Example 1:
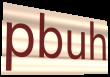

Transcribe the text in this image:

pbuh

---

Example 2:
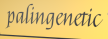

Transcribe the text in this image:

palingenetic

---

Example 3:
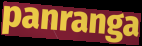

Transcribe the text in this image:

panranga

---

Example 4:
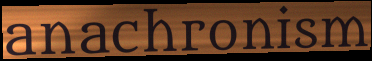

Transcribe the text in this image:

anachronism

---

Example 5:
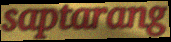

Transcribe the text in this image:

saptarang